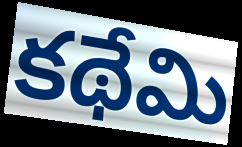
కథేమి